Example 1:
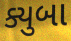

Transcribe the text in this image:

ક્યુબા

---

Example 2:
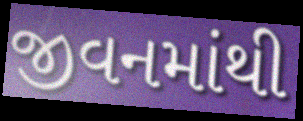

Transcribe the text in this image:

જીવનમાંથી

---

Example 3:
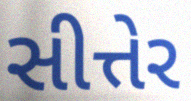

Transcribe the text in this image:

સીત્તેર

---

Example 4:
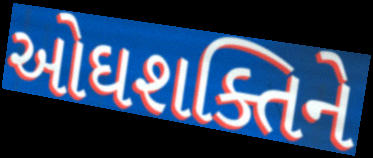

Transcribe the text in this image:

ઓઘશક્તિને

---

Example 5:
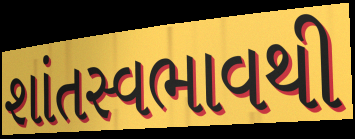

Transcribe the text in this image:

શાંતસ્વભાવથી